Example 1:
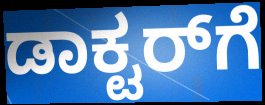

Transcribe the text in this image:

ಡಾಕ್ಟರ್‌ಗೆ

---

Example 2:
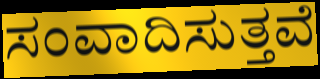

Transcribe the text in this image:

ಸಂವಾದಿಸುತ್ತವೆ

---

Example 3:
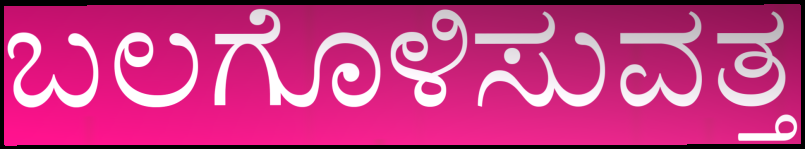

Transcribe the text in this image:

ಬಲಗೊಳಿಸುವತ್ತ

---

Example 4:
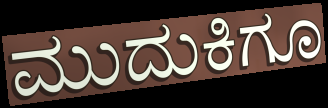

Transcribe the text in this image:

ಮುದುಕಿಗೂ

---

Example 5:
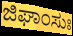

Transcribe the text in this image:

ಜಿಘಾಂಸುಃ